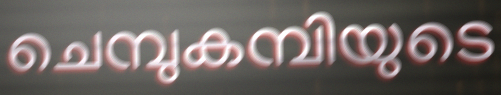
ചെമ്പുകമ്പിയുടെ